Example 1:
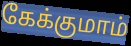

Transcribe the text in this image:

கேக்குமாம்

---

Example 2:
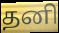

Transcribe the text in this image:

தனி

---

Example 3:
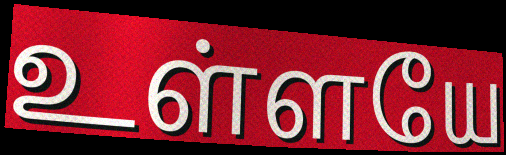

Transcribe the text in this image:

உள்ளயே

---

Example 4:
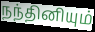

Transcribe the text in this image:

நந்தினியும்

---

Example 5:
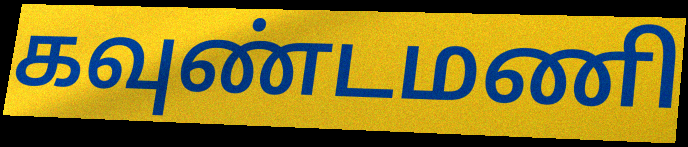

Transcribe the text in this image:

கவுண்டமணி